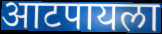
आटपायला